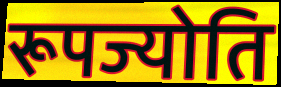
रूपज्योति